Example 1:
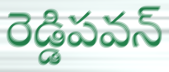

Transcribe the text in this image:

రెడ్డిపవన్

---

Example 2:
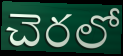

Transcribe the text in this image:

చెరలో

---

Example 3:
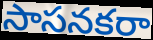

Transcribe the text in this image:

సాసనకరా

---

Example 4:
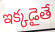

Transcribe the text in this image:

ఇక్కడైతే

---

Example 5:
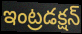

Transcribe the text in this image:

ఇంట్రడక్షన్